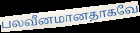
பலவீனமானதாகவே